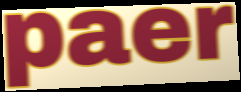
paer